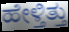
ಹೇಳ್ತಿತ್ತು